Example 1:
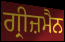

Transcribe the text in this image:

ਗ੍ਰੀਜ਼ਮੈਨ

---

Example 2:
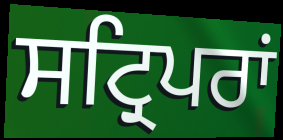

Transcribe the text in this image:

ਸਟ੍ਰਿਪਰਾਂ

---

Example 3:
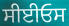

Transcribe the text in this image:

ਸੀਈਓਸ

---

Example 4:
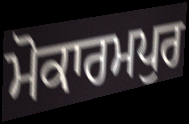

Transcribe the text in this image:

ਮੋਕਾਰਮਪੁਰ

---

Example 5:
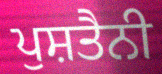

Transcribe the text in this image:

ਪੁਸ਼ਤੈਨੀ